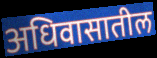
अधिवासातील